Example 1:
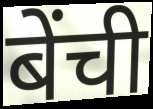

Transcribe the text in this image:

बेंची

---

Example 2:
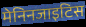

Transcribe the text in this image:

मेनिनजाइटिस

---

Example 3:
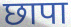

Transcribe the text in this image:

छापा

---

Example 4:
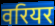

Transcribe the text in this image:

वरियर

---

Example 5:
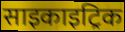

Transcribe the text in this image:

साइकाइट्रिक